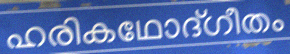
ഹരികഥോദ്ഗീതം